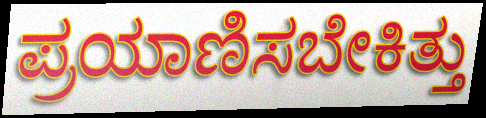
ಪ್ರಯಾಣಿಸಬೇಕಿತ್ತು